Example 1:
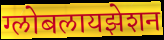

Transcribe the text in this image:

ग्लोबलायझेशन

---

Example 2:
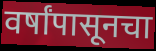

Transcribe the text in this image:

वर्षांपासूनचा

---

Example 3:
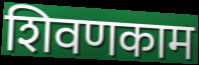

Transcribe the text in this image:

शिवणकाम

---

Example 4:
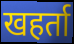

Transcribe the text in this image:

खहर्ता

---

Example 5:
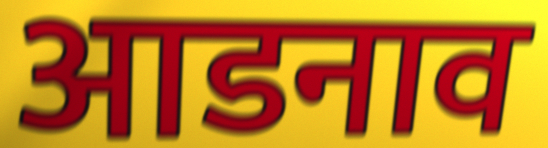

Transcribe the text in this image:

आडनाव